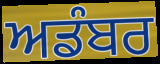
ਅਡੰਬਰ